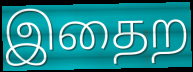
இதைற